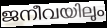
ജനീവയിലും